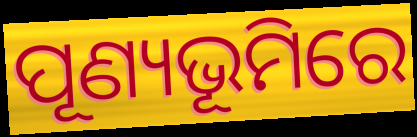
ପୂଣ୍ୟଭୂମିରେ